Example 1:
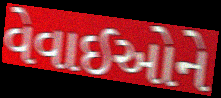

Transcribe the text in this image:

વેવાઈઓને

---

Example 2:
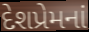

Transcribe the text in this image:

દેશપ્રેમનાં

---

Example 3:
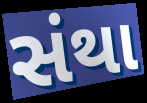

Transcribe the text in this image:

સંથા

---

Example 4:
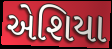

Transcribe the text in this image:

એશિયા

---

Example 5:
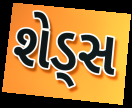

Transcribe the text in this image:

શેડ્સ